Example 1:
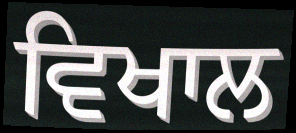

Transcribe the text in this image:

ਵਿਖਾਲ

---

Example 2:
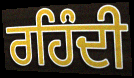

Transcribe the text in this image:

ਰਹਿੰਦੀ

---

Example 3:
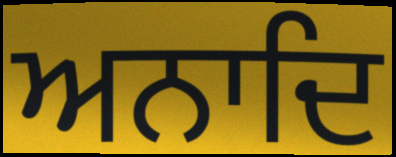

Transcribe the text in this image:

ਅਨਾਦਿ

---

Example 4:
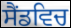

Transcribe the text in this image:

ਸੈਂਡਵਿਚ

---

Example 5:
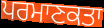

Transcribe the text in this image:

ਪਰਮਾਣਕਤਾ